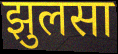
झुलसा